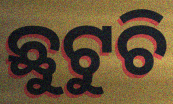
ଛୁଟୁଚି